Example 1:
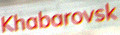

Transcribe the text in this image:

Khabarovsk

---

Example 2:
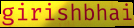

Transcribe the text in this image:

girishbhai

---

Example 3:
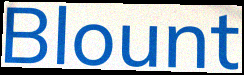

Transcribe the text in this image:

Blount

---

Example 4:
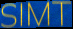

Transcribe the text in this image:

SIMT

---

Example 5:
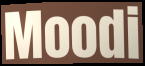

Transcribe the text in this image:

Moodi